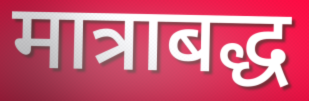
मात्राबद्ध